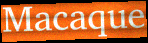
Macaque